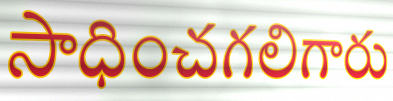
సాధించగలిగారు